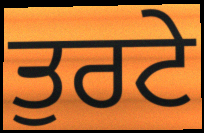
ਤੁਰਟੇ